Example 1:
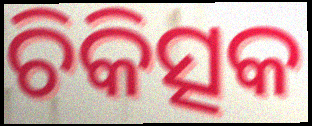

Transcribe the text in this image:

ଚିକିତ୍ସକ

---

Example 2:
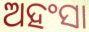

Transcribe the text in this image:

ଅହଂସା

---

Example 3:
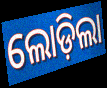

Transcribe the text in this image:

ଲୋଡ଼ିଲା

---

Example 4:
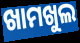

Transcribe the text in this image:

ଖାମଖୁଲ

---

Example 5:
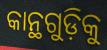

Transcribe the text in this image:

କାନ୍ଥଗୁଡ଼ିକୁ